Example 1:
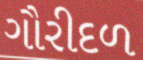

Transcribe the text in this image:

ગૌરીદળ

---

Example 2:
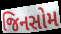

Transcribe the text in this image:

જિનસોમ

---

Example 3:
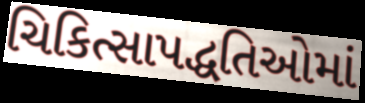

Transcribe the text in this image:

ચિકિત્સાપદ્ધતિઓમાં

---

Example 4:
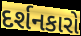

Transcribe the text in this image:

દર્શનકારો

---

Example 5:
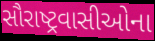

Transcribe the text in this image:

સૌરાષ્ટ્રવાસીઓના